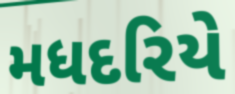
મધદરિયે